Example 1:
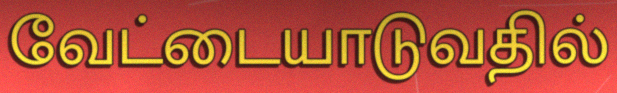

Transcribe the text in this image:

வேட்டையாடுவதில்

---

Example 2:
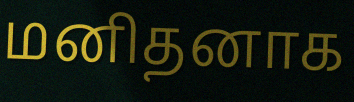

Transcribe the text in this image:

மனிதனாக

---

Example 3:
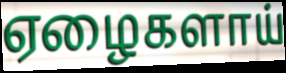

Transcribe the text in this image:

ஏழைகளாய்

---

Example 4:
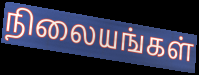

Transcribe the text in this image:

நிலையங்கள்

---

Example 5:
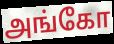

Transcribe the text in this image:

அங்கோ